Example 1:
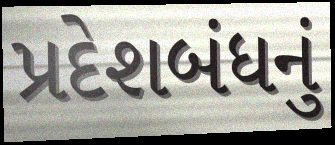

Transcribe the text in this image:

પ્રદેશબંધનું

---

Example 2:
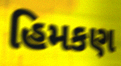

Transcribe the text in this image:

હિમકણ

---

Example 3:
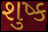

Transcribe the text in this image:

શુષ્ક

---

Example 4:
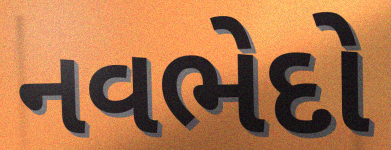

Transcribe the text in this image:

નવભેદો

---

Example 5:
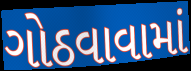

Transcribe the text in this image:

ગોઠવાવામાં